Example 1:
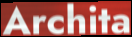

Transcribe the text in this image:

Archita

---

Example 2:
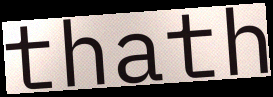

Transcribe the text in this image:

thath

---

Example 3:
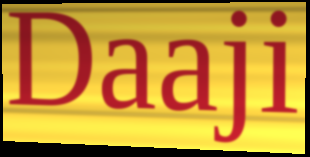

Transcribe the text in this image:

Daaji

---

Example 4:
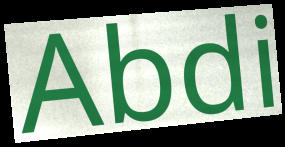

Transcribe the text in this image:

Abdi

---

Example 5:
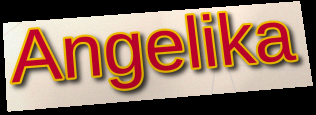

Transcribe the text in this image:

Angelika